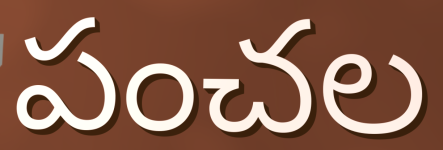
పంచల